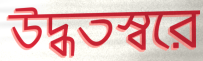
উদ্ধতস্বরে